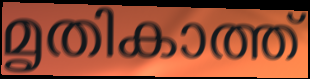
മൃതികാത്ത്